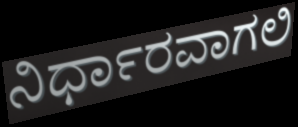
ನಿರ್ಧಾರವಾಗಲಿ